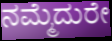
ನಮ್ಮೆದುರೇ